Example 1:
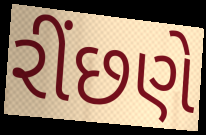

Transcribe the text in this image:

રીંછણે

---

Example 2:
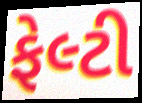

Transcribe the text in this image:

ફેલ્ટી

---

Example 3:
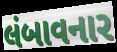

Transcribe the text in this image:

લંબાવનાર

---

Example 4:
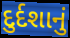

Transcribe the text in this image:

દુર્દશાનું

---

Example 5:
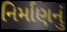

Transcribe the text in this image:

નિર્માણનું